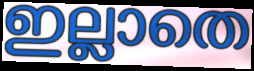
ഇല്ലാതെ